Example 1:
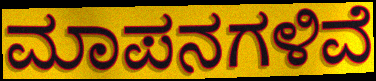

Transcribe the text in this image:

ಮಾಪನಗಳಿವೆ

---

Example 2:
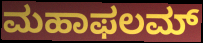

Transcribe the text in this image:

ಮಹಾಫಲಮ್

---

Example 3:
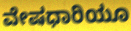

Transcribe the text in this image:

ವೇಷಧಾರಿಯೂ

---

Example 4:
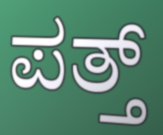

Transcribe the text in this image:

ಪತ್ತ್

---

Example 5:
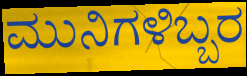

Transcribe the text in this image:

ಮುನಿಗಳಿಬ್ಬರ